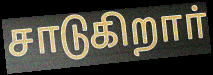
சாடுகிறார்